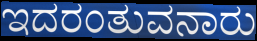
ಇದರಂತುವನಾರು